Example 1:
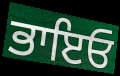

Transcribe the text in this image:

ਭਾਇਓ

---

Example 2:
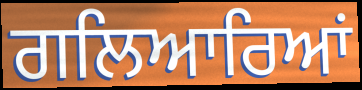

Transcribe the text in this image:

ਗਲਿਆਰਿਆਂ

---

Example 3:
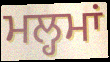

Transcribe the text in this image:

ਮਲ੍ਹਮਾਂ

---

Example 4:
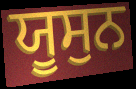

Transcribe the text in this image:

ਯੂਸੁਨ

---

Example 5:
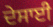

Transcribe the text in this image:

ਦੇਸਾਈ